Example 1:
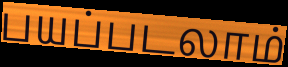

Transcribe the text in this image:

பயப்படலாம்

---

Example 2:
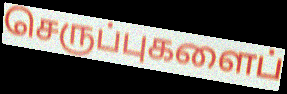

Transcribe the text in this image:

செருப்புகளைப்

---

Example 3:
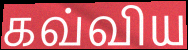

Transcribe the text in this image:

கவ்விய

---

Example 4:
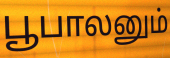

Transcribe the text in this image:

பூபாலனும்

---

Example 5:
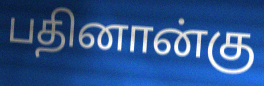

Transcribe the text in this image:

பதினான்கு